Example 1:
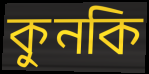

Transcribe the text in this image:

কুনকি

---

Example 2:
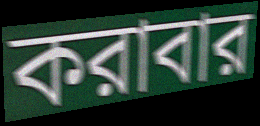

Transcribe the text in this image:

করাবার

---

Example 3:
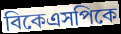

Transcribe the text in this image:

বিকেএসপিকে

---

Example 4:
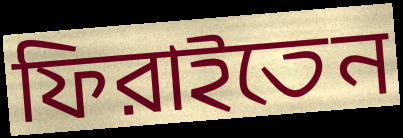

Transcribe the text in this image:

ফিরাইতেন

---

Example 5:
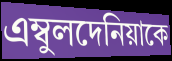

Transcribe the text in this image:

এম্বুলদেনিয়াকে